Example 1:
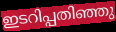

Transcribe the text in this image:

ഇടറിപ്പതിഞ്ഞു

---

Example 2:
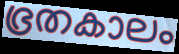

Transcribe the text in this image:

ഭ്രതകാലം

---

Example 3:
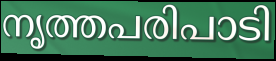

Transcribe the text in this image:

നൃത്തപരിപാടി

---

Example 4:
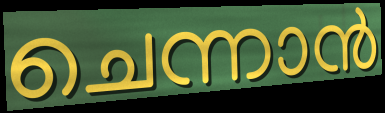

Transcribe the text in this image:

ചെന്നാൻ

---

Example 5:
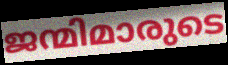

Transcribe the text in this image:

ജന്മിമാരുടെ